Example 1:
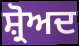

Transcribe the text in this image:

ਸ਼੍ਰੋਅਦ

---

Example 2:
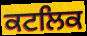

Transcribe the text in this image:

ਕਟਲਿਕ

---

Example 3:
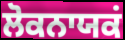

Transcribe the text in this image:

ਲੋਕਨਾਯਕਂ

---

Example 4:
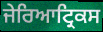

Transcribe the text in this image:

ਜੇਰਿਆਟ੍ਰਿਕਸ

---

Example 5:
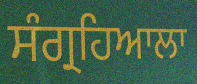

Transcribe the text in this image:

ਸੰਗ੍ਰਹਿਆਲਾ